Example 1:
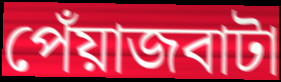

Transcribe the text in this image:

পেঁয়াজবাটা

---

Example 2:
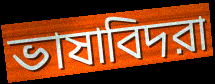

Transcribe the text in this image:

ভাষাবিদরা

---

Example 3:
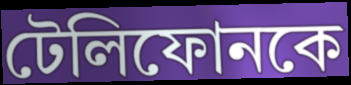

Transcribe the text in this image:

টেলিফোনকে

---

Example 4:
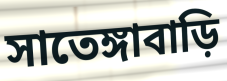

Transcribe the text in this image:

সাতেঙ্গাবাড়ি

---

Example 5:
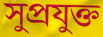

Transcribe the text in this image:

সুপ্রযুক্ত